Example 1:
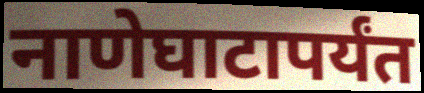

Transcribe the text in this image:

नाणेघाटापर्यंत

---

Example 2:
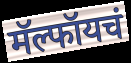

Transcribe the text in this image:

मॅल्फॉयचं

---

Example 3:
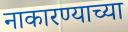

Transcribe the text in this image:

नाकारण्याच्या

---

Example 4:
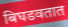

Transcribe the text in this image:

बिघडवतात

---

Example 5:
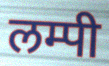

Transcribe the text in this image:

लम्पी